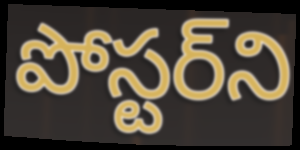
పోస్టర్‌ని